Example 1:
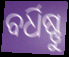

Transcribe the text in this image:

ବର୍ଧିଷ୍ଣୁ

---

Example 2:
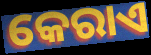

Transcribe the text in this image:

କେରାଏ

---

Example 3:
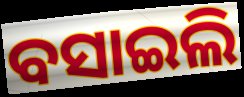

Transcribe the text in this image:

ବସାଇଲି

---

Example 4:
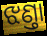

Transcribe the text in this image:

ଝଣ୍ତା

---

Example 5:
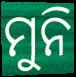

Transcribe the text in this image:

ମୁନି